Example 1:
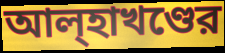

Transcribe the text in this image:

আল্হাখণ্ডের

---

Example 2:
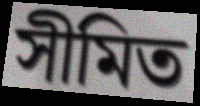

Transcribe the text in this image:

সীমিত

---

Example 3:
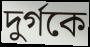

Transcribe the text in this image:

দুর্গকে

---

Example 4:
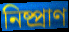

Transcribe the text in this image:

নিষ্প্রাণ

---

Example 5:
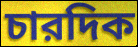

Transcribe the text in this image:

চারদিক